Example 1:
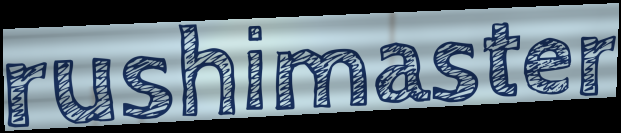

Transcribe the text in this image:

rushimaster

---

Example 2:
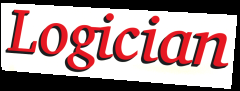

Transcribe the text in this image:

Logician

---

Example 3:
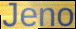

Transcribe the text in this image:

Jeno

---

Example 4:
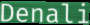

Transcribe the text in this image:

Denali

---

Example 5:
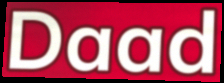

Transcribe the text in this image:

Daad